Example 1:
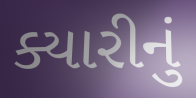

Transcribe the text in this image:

ક્યારીનું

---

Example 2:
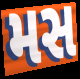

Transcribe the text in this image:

મસ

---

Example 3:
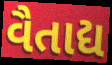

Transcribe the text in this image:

વૈતાદ્ય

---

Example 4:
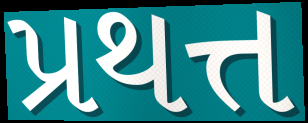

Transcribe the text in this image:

પ્રથત્ત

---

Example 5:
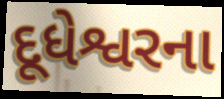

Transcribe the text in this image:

દૂધેશ્વરના